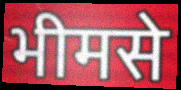
भीमसे